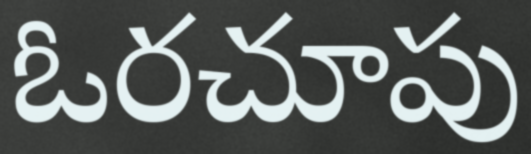
ఓరచూపు